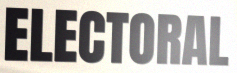
ELECTORAL